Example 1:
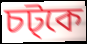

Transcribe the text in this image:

চট্‌কে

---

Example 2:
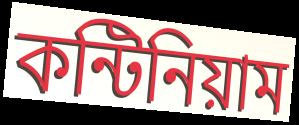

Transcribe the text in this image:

কন্টিনিয়াম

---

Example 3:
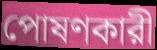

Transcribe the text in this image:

পোষণকারী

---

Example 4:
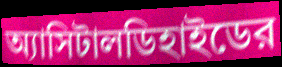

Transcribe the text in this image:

অ্যাসিটালডিহাইডের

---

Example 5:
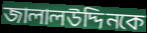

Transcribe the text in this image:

জালালউদ্দিনকে